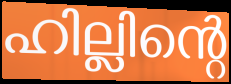
ഹില്ലിന്റെ